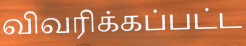
விவரிக்கப்பட்ட